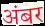
अंबर